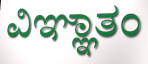
ವಿಞ್ಞಾತಂ